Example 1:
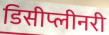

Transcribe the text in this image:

डिसीप्लीनरी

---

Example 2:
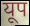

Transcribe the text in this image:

यूप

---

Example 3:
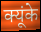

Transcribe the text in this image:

क्यूंके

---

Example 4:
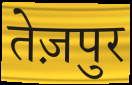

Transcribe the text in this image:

तेज़पुर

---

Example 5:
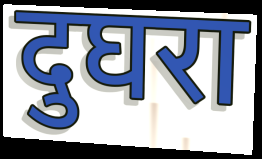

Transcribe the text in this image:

दुघरा